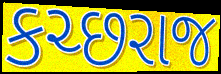
કચ્છરાજ